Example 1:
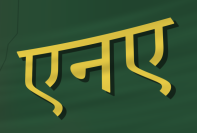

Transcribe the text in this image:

एनए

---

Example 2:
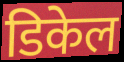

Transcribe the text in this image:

डिकेल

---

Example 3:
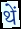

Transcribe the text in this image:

थें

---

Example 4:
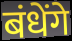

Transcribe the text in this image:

बंधेंगे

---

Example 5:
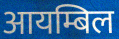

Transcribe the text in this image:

आयम्बिल